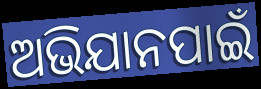
ଅଭିଯାନପାଇଁ